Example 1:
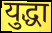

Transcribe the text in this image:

युद्धा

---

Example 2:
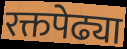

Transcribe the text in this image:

रक्तपेढ्या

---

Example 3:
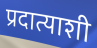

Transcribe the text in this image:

प्रदात्याशी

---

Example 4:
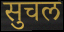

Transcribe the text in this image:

सुचल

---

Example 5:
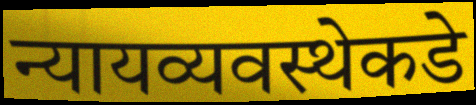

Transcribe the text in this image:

न्यायव्यवस्थेकडे